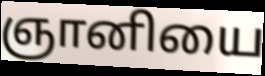
ஞானியை